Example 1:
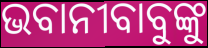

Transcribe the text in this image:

ଭବାନୀବାବୁଙ୍କୁ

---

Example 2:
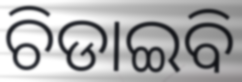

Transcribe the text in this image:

ଚିଡାଇବି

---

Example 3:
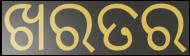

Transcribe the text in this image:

ଖରତର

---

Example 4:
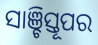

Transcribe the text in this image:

ସାଞ୍ଚିସ୍ତୂପର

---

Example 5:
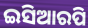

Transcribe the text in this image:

ଇସିଆରପି